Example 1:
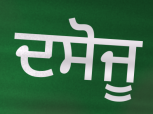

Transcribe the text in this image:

ਦਸੋਜੂ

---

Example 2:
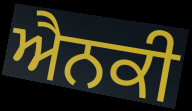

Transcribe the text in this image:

ਐਨਕੀ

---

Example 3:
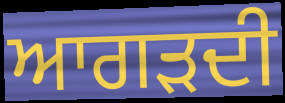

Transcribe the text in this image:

ਆਗੜਦੀ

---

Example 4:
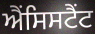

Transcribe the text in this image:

ਐਂਸਿਸਟੈਂਟ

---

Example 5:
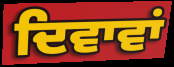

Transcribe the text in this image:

ਦਿਵਾਵਾਂ